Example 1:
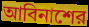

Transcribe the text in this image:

আবিনাশের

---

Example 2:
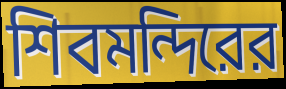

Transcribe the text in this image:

শিবমন্দিরের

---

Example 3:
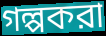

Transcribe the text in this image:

গল্পকরা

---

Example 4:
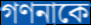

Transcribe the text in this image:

গণনাকে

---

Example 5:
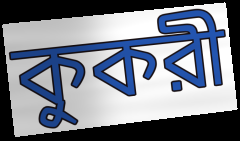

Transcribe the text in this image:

কুকরী